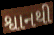
શ્વાનથી